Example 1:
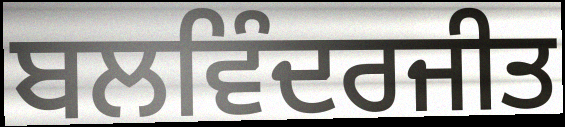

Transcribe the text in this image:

ਬਲਵਿੰਦਰਜੀਤ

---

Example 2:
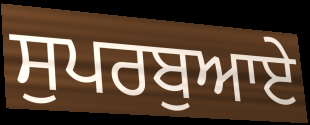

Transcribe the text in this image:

ਸੁਪਰਬੁਆਏ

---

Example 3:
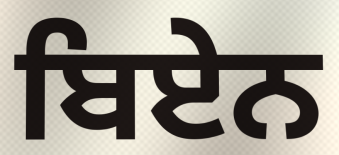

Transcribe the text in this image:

ਬਿਏਨ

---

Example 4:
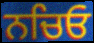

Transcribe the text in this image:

ਨਚਿਓ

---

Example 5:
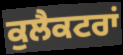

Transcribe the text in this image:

ਕੁਲੈਕਟਰਾਂ